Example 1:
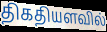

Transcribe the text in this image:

திகதியளவில்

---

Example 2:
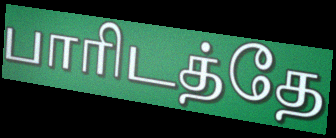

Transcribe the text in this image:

பாரிடத்தே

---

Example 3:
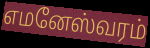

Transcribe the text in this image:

எமனேஸ்வரம்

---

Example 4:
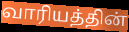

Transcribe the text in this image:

வாரியத்தின்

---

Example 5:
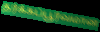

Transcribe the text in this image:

தர்க்கப்பூர்வமான